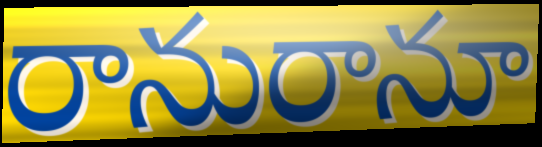
రానురానూ